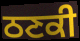
ਠਣਕੀ